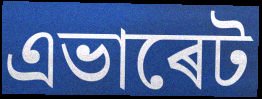
এভাৰেট